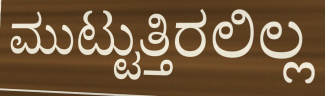
ಮುಟ್ಟುತ್ತಿರಲಿಲ್ಲ